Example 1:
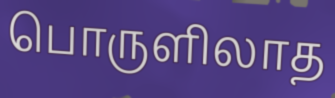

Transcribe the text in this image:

பொருளிலாத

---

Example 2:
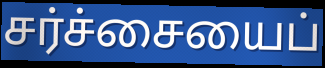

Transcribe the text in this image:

சர்ச்சையைப்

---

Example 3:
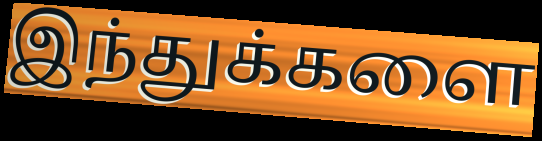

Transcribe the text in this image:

இந்துக்களை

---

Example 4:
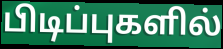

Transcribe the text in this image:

பிடிப்புகளில்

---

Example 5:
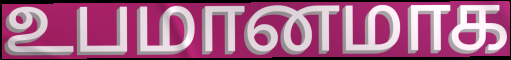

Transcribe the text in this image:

உபமானமாக